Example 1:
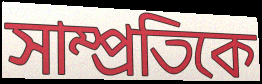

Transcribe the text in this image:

সাম্প্রতিকে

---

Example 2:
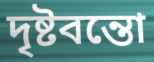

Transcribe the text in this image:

দৃষ্টবন্তো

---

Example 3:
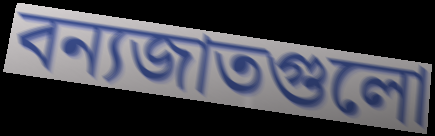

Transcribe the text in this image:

বন্যজাতগুলো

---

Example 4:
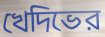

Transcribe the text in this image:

খেদিভের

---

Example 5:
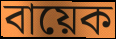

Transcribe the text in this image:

বায়েক